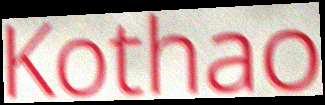
Kothao